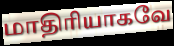
மாதிரியாகவே